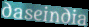
daseindia